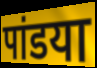
पांडया